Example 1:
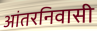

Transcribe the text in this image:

आंतरनिवासी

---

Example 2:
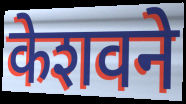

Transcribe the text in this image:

केशवने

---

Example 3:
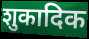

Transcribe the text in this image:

शुकादिक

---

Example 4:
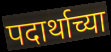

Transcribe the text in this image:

पदार्थाच्या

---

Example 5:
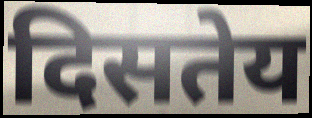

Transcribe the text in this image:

दिसतेय